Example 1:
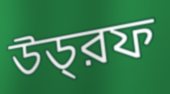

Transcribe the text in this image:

উড্‌রফ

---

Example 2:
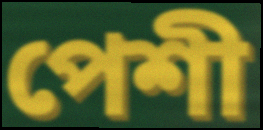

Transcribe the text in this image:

পেশী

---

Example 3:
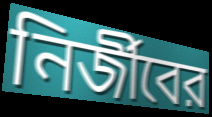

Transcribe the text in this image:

নির্জীবের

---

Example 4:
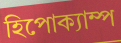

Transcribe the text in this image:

হিপোক্যাম্প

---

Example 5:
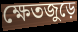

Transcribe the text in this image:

ক্ষেতজুড়ে